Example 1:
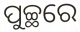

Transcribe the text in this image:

ପୁଚ୍ଛରେ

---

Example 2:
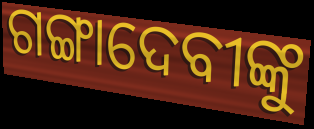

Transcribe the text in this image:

ଗଙ୍ଗାଦେବୀଙ୍କୁ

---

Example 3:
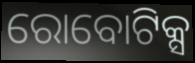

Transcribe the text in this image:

ରୋବୋଟିକ୍ସ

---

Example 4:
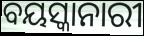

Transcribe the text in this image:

ବୟସ୍କାନାରୀ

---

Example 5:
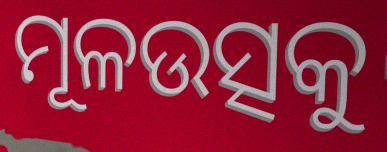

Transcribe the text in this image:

ମୂଳଉତ୍ସକୁ